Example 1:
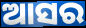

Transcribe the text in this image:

ଆସର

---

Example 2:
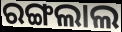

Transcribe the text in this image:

ରଙ୍ଗଲାଲ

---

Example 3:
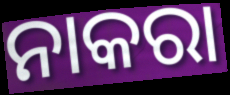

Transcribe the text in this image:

ନାକରା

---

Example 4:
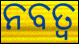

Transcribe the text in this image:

ନବତ୍ଵ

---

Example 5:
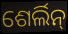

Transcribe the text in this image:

ଶେର୍ଲିନ୍